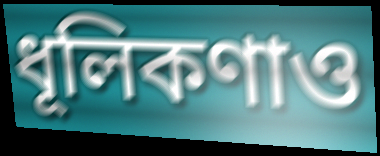
ধূলিকণাও